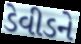
ડેવીડને